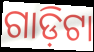
ଗାଡ଼ିଟା